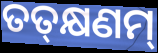
ତତ୍‌କ୍ଷଣମ୍